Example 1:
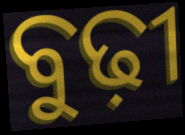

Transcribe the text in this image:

ବୁଢ଼ୀ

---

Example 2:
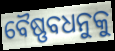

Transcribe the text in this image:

ବୈଷ୍ଣବଧନୁକୁ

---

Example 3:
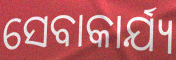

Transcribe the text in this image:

ସେବାକାର୍ଯ୍ୟ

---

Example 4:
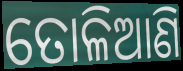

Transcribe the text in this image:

ତୋଳିଆଣି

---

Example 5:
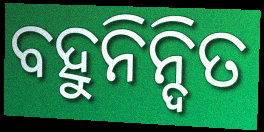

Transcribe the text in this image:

ବହୁନିନ୍ଦିତ